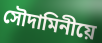
সৌদামিনীয়ে